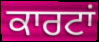
ਕਾਰਟਾਂ